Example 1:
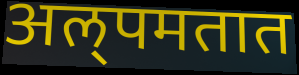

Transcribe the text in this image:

अल्पमतात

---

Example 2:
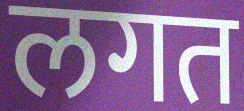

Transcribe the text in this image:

लगत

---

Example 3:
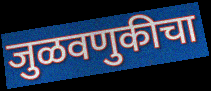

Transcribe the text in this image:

जुळवणुकीचा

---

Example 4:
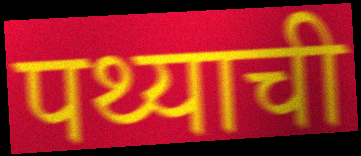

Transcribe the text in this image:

पथ्याची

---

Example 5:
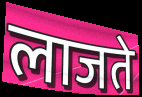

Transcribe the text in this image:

लाजते